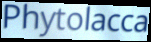
Phytolacca